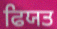
ਫਿਯਤ